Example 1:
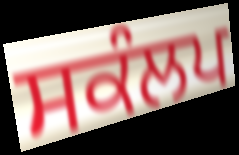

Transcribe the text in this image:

ਸਕੰਲਪ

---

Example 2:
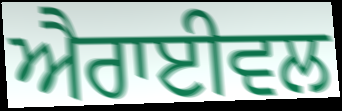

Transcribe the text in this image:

ਐਰਾਈਵਲ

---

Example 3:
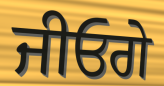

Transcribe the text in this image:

ਜੀਓਗੇ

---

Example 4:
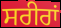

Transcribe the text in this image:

ਸਰੀਰਾਂ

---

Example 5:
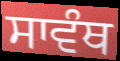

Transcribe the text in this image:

ਸਾਵੰਥ